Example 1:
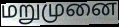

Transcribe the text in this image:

மறுமுனை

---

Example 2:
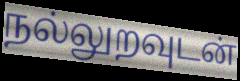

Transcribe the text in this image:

நல்லுறவுடன்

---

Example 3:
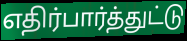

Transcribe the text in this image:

எதிர்பார்த்துட்டு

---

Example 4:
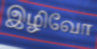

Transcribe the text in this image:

இழிவோ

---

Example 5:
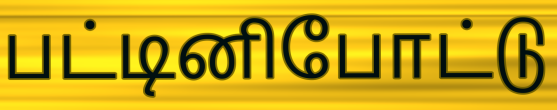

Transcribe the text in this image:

பட்டினிபோட்டு